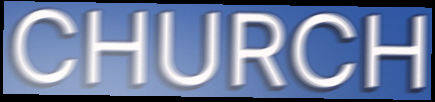
CHURCH